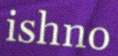
ishno